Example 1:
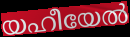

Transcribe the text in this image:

യഹീയേൽ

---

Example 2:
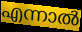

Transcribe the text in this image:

എന്നാൽ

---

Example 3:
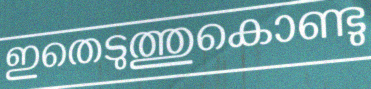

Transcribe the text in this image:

ഇതെടുത്തുകൊണ്ടു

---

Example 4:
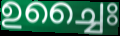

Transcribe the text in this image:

ഉച്ചൈഃ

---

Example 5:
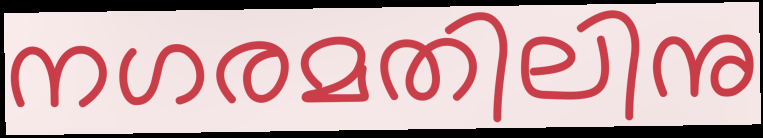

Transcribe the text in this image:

നഗരമതിലിനു